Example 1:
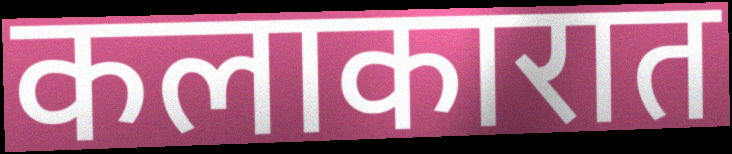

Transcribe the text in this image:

कलाकारात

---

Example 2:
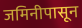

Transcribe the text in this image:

जमिनीपासून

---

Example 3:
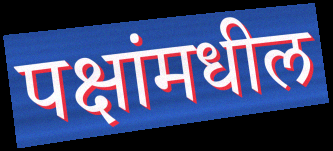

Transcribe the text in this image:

पक्षांमधील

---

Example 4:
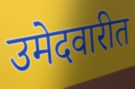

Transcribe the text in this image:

उमेदवारीत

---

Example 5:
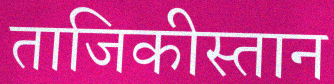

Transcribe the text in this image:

ताजिकीस्तान